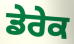
ਡੇਰੇਕ